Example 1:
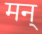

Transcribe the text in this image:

मन्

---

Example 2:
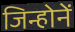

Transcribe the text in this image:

जिन्होनें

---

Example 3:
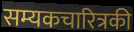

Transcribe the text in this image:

सम्यकचारित्रकी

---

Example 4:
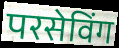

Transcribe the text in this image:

परसेविंग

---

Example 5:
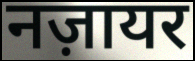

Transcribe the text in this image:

नज़ायर